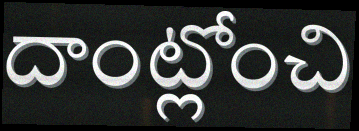
దాంట్లోంచి